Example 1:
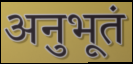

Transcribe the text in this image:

अनुभूतं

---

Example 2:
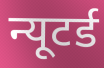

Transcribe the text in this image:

न्यूटर्ड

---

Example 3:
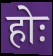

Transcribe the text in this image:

होः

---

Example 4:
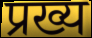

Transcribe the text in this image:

प्रख्य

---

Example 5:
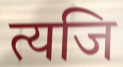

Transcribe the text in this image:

त्यजि